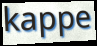
kappe